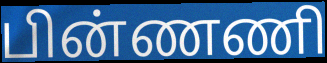
பின்ணணி